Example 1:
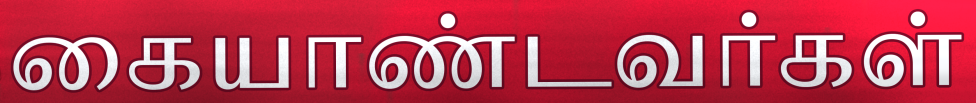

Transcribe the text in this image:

கையாண்டவர்கள்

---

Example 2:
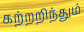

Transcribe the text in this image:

கற்றறிந்தும்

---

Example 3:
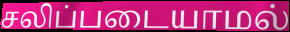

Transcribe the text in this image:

சலிப்படையாமல்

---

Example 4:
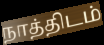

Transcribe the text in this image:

நாத்திடம்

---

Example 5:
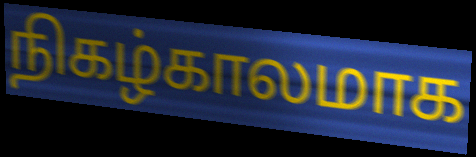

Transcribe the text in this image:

நிகழ்காலமாக